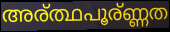
അര്ത്ഥപൂര്ണ്ണത